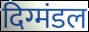
दिग्मंडल